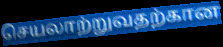
செயலாற்றுவதற்கான